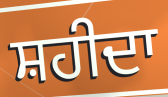
ਸ਼ਹੀਦਾ